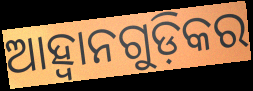
ଆହ୍ଵାନଗୁଡ଼ିକର